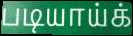
படியாய்க்